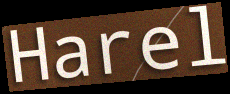
Harel